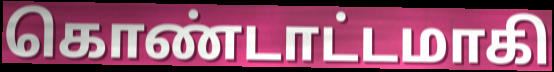
கொண்டாட்டமாகி